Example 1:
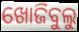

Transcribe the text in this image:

ଖୋଜିବୁଲୁ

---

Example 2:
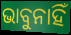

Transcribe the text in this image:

ଭାବୁନାହିଁ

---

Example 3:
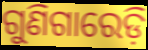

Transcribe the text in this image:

ଗୁଣିଗାରେଡ଼ି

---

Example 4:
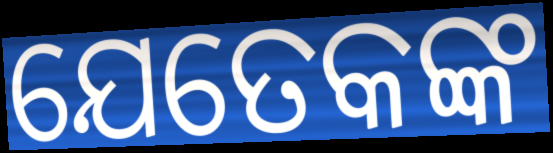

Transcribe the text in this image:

ଯେତେକଙ୍କ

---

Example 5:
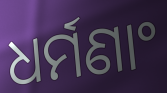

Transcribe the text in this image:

ଧର୍ମଣାଂ